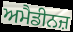
ਅਮੈਡੀਨਜ਼